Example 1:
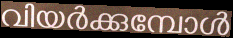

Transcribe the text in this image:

വിയർക്കുമ്പോൾ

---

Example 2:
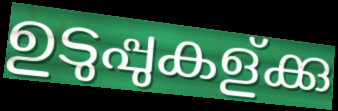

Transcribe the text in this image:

ഉടുപ്പുകള്ക്കു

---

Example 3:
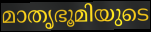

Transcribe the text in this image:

മാതൃഭൂമിയുടെ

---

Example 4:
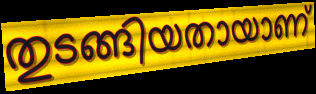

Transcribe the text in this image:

തുടങ്ങിയതായാണ്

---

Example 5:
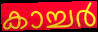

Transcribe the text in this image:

കാച്ചർ